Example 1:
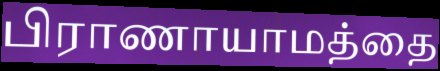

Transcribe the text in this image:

பிராணாயாமத்தை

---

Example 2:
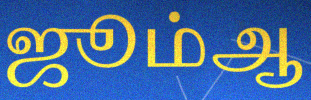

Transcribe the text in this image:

ஜூம்ஆ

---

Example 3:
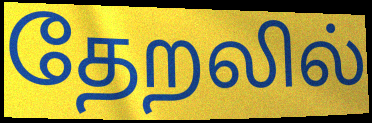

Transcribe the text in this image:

தேறலில்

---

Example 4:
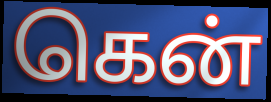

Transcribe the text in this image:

கென்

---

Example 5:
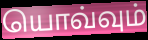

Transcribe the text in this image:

யொவ்வும்